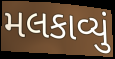
મલકાવ્યું